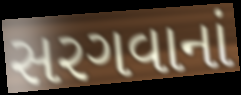
સરગવાનાં